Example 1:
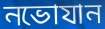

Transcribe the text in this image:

নভোযান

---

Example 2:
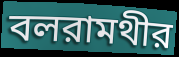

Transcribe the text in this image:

বলরামথীর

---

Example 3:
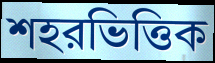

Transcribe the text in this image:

শহরভিত্তিক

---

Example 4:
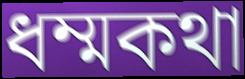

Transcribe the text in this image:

ধম্মকথা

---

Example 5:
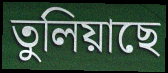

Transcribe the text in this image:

তুলিয়াছে